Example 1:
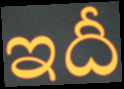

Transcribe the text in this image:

ఇదీ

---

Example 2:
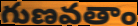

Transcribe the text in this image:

గుణవతాం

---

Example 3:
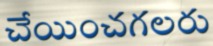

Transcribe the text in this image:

చేయించగలరు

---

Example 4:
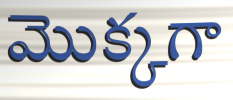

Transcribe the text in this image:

మొక్కగా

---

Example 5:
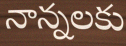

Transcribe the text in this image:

నాన్నలకు